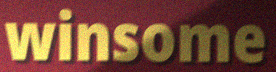
winsome